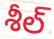
శీల్